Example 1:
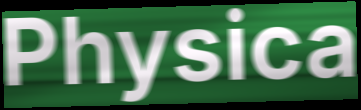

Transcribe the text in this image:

Physica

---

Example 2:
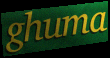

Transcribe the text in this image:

ghuma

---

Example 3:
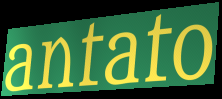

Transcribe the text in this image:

antato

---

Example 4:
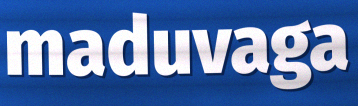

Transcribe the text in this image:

maduvaga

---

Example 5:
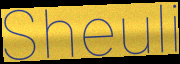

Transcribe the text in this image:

Sheuli